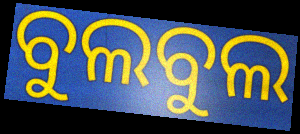
ବୁଲବୁଲ